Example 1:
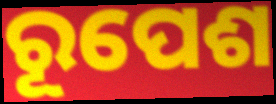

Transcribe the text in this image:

ରୂପେଶ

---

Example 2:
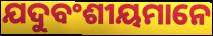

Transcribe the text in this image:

ଯଦୁବଂଶୀୟମାନେ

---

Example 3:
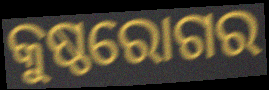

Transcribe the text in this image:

କୁଷ୍ଠରୋଗର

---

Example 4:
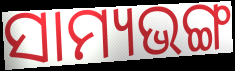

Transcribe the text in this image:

ସାମ୍ଯଭଙ୍ଗ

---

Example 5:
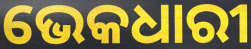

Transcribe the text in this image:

ଭେକଧାରୀ